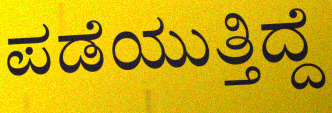
ಪಡೆಯುತ್ತಿದ್ದೆ